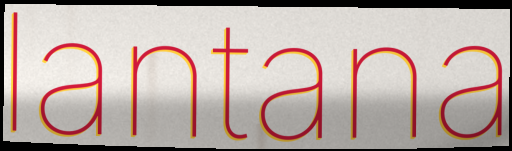
lantana